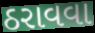
ઠરાવવા